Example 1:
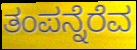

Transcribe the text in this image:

ತಂಪನ್ನೆರೆವ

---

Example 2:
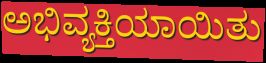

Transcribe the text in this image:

ಅಭಿವ್ಯಕ್ತಿಯಾಯಿತು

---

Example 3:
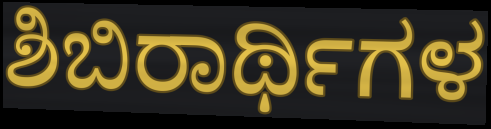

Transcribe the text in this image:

ಶಿಬಿರಾರ್ಥಿಗಳ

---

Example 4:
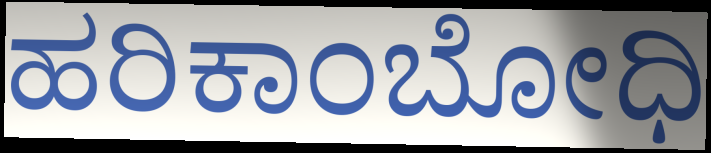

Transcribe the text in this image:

ಹರಿಕಾಂಬೋಧಿ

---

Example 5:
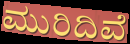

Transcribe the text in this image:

ಮುರಿದಿವೆ